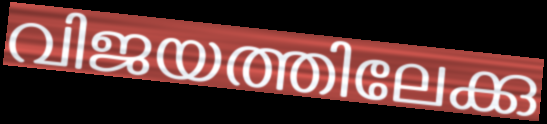
വിജയത്തിലേക്കു